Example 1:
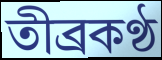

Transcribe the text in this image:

তীব্রকণ্ঠ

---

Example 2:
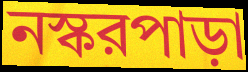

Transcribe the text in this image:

নস্করপাড়া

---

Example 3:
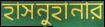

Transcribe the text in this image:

হাসনুহানার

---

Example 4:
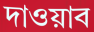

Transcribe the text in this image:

দাওয়াব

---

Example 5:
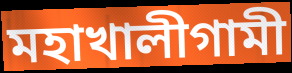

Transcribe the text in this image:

মহাখালীগামী